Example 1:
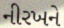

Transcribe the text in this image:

નીરખને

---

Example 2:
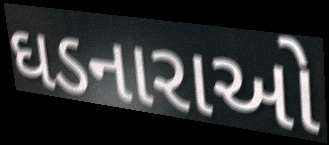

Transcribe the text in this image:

ઘડનારાઓ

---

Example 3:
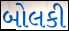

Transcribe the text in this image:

બોલકી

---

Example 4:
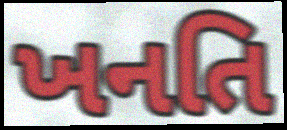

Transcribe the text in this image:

ખનતિ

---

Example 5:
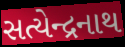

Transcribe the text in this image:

સત્યેન્દ્રનાથ